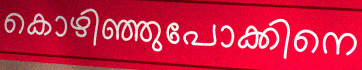
കൊഴിഞ്ഞുപോക്കിനെ